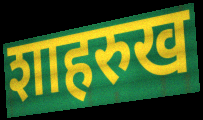
शाहरुख